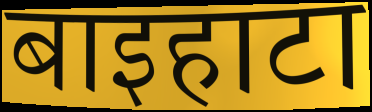
बाइहाटा